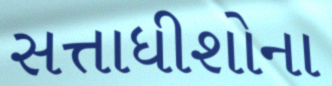
સત્તાધીશોના